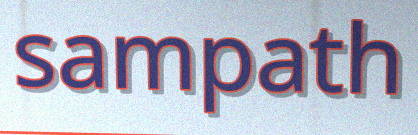
sampath